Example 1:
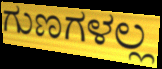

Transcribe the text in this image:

ಗುಣಗಳಲ್ಲ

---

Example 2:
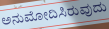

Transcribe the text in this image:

ಅನುಮೋದಿಸಿರುವುದು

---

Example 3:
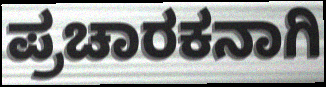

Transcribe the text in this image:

ಪ್ರಚಾರಕನಾಗಿ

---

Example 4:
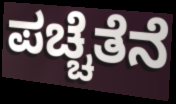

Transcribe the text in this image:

ಪಚ್ಚೆತೆನೆ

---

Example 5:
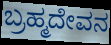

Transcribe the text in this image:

ಬ್ರಹ್ಮದೇವನ